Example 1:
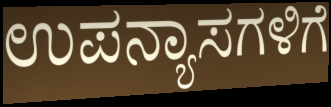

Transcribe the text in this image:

ಉಪನ್ಯಾಸಗಳಿಗೆ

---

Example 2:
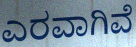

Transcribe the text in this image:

ಎರವಾಗಿವೆ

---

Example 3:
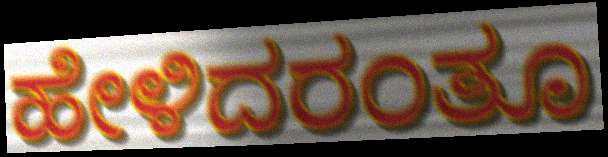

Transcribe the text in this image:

ಹೇಳಿದರಂತೂ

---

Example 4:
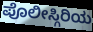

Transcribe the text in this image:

ಪೊಲೀಸ್ಗಿರಿಯ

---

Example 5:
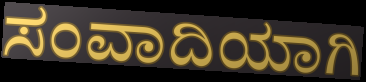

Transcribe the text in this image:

ಸಂವಾದಿಯಾಗಿ